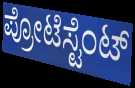
ಪ್ರೋಟೆಸ್ಟೆಂಟ್